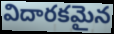
విదారకమైన